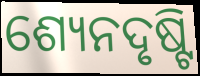
ଶ୍ୟେନଦୃଷ୍ଟି